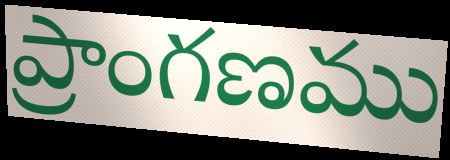
ప్రాంగణము